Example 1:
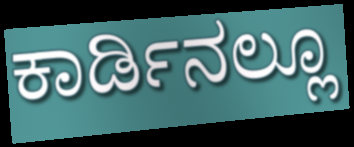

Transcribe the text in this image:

ಕಾರ್ಡಿನಲ್ಲೂ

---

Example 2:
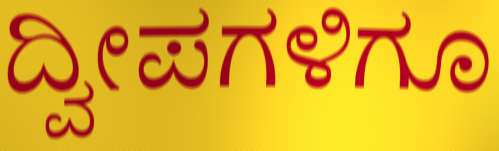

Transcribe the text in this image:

ದ್ವೀಪಗಳಿಗೂ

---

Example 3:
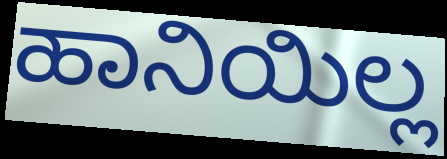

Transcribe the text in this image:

ಹಾನಿಯಿಲ್ಲ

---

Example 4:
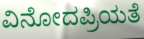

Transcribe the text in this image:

ವಿನೋದಪ್ರಿಯತೆ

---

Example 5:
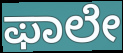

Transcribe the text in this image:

ಫಾಲೇ